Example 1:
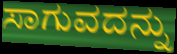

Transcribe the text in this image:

ಸಾಗುವದನ್ನು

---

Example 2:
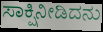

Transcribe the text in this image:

ಸಾಕ್ಷಿನೀಡಿದನು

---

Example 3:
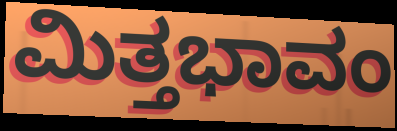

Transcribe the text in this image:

ಮಿತ್ತಭಾವಂ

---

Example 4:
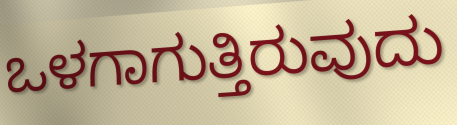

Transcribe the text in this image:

ಒಳಗಾಗುತ್ತಿರುವುದು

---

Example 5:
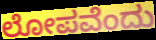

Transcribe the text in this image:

ಲೋಪವೆಂದು